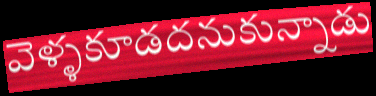
వెళ్ళకూడదనుకున్నాడు